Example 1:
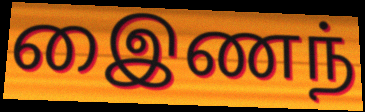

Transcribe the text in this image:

இைணந்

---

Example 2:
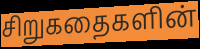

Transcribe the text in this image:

சிறுகதைகளின்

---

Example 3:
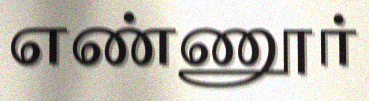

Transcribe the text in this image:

எண்ணூர்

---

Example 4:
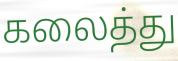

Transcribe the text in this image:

கலைத்து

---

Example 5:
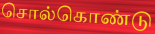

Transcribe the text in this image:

சொல்கொண்டு